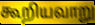
கூறியவாறு